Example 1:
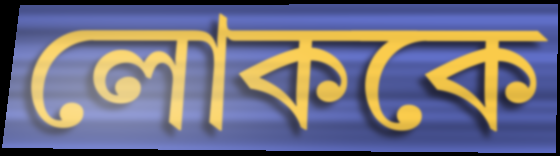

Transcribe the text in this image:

লোককে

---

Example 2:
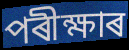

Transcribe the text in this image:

পৰীক্ষাৰ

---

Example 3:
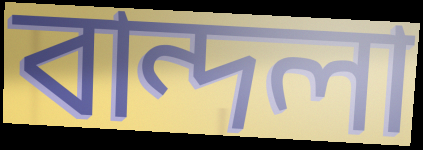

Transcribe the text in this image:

বান্দলা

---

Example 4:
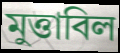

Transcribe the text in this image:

মুত্তাবিল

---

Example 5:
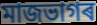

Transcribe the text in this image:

মাজভাগৰ